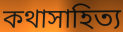
কথাসাহিত্য